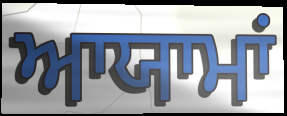
ਆਯਾਮਾਂ